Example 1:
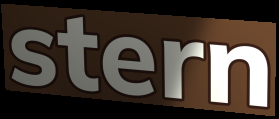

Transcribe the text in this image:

stern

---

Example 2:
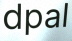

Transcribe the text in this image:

dpal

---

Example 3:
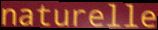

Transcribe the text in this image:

naturelle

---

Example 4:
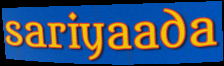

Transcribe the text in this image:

sariyaada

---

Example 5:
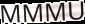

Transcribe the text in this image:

MMMU